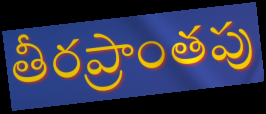
తీరప్రాంతపు